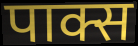
पाक्स